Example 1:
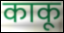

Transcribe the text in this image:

काकू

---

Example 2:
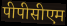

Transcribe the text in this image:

पीपीसीएम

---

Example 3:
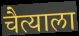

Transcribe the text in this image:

चैत्याला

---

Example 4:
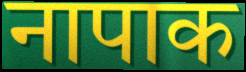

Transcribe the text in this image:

नापाक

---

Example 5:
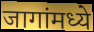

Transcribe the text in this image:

जागांमध्ये